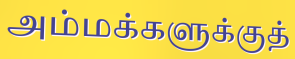
அம்மக்களுக்குத்